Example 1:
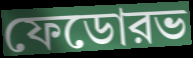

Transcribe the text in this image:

ফেডোরভ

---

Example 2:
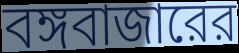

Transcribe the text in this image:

বঙ্গবাজারের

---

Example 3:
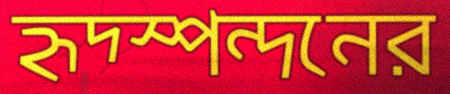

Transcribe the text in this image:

হৃদ্স্পন্দনের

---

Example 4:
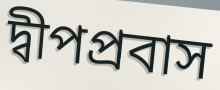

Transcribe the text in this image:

দ্বীপপ্রবাস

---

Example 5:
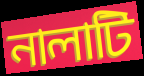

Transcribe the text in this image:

নালাটি